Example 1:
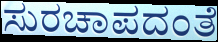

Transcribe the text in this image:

ಸುರಚಾಪದಂತೆ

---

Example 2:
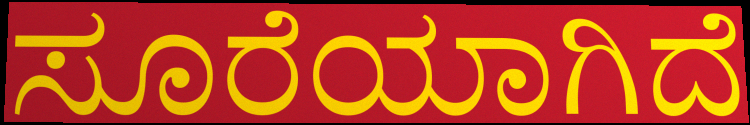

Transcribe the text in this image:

ಸೂರೆಯಾಗಿದೆ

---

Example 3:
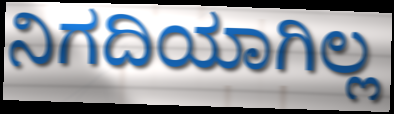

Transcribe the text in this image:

ನಿಗದಿಯಾಗಿಲ್ಲ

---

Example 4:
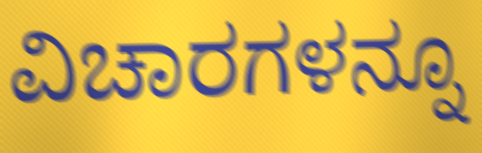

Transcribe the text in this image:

ವಿಚಾರಗಳನ್ನೂ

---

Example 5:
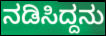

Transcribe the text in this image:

ನಡಿಸಿದ್ದನು